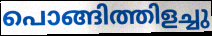
പൊങ്ങിത്തിളച്ചു